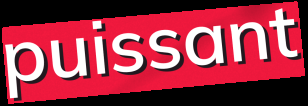
puissant